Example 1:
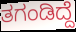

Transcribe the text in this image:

ತಗಂಡಿದ್ದೆ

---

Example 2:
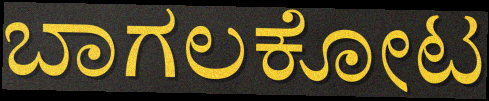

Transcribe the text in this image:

ಬಾಗಲಕೋಟ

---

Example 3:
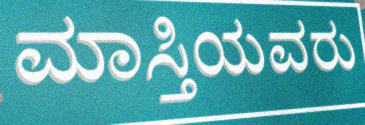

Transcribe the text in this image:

ಮಾಸ್ತಿಯವರು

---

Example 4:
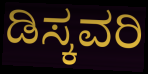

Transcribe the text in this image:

ಡಿಸ್ಕವರಿ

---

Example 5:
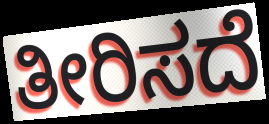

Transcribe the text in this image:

ತೀರಿಸದೆ